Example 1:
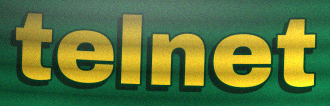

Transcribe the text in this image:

telnet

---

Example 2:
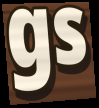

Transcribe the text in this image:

gs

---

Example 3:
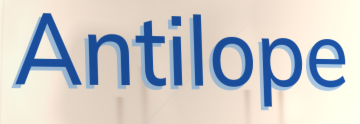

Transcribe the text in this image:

Antilope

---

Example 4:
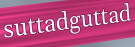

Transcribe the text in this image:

suttadguttad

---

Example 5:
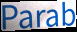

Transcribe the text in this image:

Parab